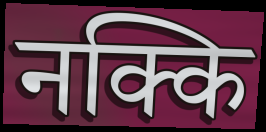
नक्कि